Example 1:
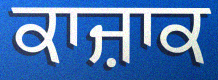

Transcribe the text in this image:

ਕਾਜ਼ਾਕ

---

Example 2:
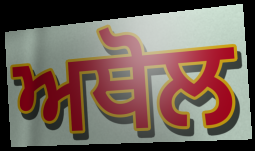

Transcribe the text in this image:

ਅਥੋਲ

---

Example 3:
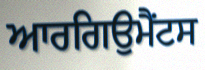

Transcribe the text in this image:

ਆਰਗਿਉਮੈਂਟਸ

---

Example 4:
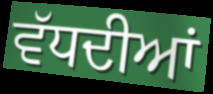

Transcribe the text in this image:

ਵੱਧਦੀਆਂ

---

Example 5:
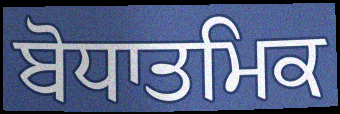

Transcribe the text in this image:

ਬੋਧਾਤਮਿਕ